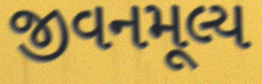
જીવનમૂલ્ય